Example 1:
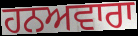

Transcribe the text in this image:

ਹਨਅਵਾਰਾ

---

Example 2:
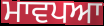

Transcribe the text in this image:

ਮਾਵਪਆ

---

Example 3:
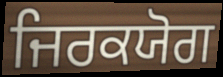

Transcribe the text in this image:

ਜਿਰਕਯੋਗ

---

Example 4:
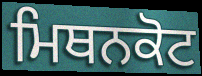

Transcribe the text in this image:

ਮਿਥਨਕੋਟ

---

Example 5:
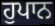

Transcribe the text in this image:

ਹੁਪਾਨ